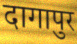
दागापुर